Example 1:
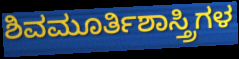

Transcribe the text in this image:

ಶಿವಮೂರ್ತಿಶಾಸ್ತ್ರಿಗಳ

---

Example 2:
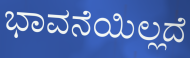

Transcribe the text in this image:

ಭಾವನೆಯಿಲ್ಲದೆ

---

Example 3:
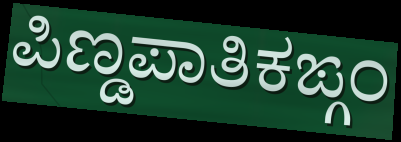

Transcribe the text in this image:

ಪಿಣ್ಡಪಾತಿಕಙ್ಗಂ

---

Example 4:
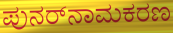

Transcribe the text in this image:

ಪುನರ್‌ನಾಮಕರಣ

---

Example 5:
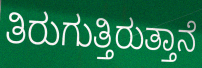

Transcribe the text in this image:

ತಿರುಗುತ್ತಿರುತ್ತಾನೆ